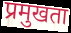
प्रमुखता